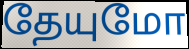
தேயுமோ